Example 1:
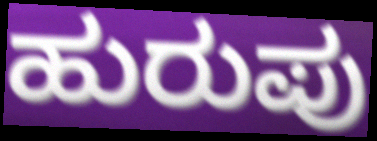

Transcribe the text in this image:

ಹುರುಪು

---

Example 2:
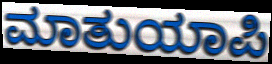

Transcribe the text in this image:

ಮಾತುಯಾಪಿ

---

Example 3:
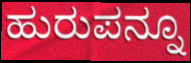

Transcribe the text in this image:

ಹುರುಪನ್ನೂ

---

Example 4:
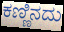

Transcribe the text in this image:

ಕಣ್ಣಿನದು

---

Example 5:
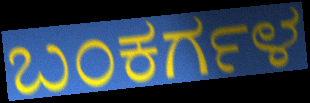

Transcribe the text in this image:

ಬಂಕರ್ಗಳ